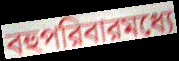
বহুপরিবারমধ্যে